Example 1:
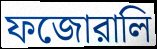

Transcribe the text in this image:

ফজোরালি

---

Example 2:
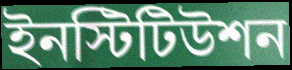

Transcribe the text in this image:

ইনস্টিটিউশন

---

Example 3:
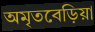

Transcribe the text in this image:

অমৃতবেড়িয়া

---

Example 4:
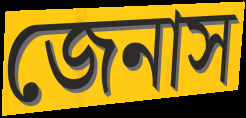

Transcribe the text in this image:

জেনাস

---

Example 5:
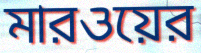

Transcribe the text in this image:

মারওয়ের